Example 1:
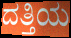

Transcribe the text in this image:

ದತ್ತಿಯ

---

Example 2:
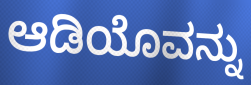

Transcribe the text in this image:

ಆಡಿಯೊವನ್ನು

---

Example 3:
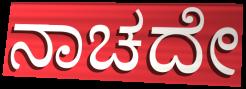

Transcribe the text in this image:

ನಾಚದೇ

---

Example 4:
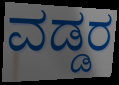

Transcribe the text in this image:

ವಡ್ಡರ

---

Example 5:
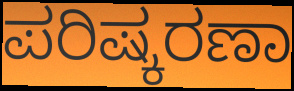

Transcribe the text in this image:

ಪರಿಷ್ಕರಣಾ